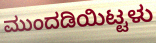
ಮುಂದಡಿಯಿಟ್ಟಳು